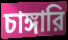
চাঙ্গারি